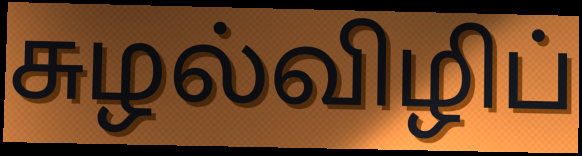
சுழல்விழிப்